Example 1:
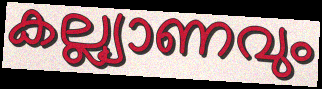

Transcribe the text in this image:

കല്ല്യാണവും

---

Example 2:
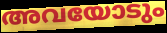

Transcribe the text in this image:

അവയോടും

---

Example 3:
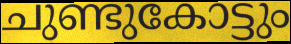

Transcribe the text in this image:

ചുണ്ടുകോട്ടും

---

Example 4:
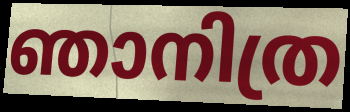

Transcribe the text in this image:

ഞാനിത്ര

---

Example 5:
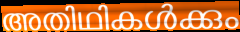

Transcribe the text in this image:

അതിഥികൾക്കും